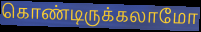
கொண்டிருக்கலாமோ